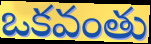
ఒకవంతు